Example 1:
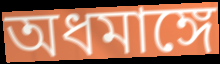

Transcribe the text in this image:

অধমাঙ্গে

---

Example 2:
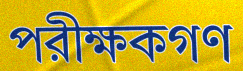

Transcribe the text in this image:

পরীক্ষকগণ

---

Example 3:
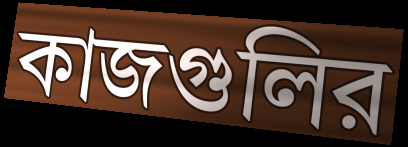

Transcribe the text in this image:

কাজগুলির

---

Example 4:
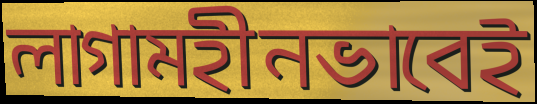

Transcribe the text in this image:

লাগামহীনভাবেই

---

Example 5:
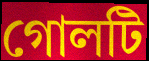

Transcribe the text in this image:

গোলটি